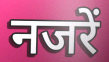
नजरें